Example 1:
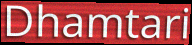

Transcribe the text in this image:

Dhamtari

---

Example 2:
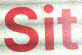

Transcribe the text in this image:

Sit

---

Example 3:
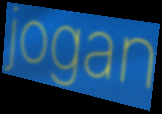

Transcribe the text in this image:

jogan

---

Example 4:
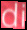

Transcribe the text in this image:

di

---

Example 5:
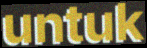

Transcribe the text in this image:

untuk